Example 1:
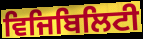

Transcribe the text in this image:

ਵਿਜਿਬਿਲਿਟੀ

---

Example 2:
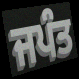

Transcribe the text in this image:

ਜਪੰਤ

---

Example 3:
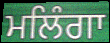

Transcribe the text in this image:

ਮਲਿੰਗਾ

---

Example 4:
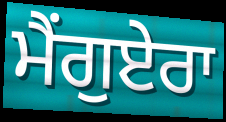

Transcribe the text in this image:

ਮੈਂਗੁਏਰਾ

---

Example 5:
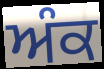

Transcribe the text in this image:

ਅੰਕ